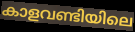
കാളവണ്ടിയിലെ